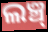
ଲଞ୍ଚ୍